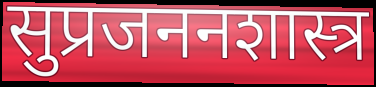
सुप्रजननशास्त्र